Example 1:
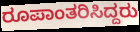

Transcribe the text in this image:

ರೂಪಾಂತರಿಸಿದ್ದರು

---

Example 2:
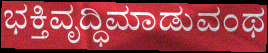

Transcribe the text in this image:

ಭಕ್ತಿವೃದ್ಧಿಮಾಡುವಂಥ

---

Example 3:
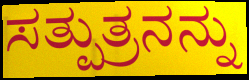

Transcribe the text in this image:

ಸತ್ಪುತ್ರನನ್ನು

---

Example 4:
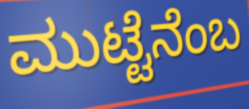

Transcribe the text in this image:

ಮುಟ್ಟೆನೆಂಬ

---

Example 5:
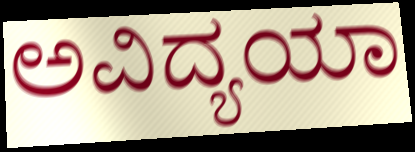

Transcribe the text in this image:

ಅವಿದ್ಯಯಾ